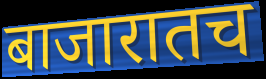
बाजारातच